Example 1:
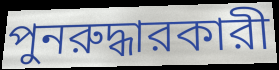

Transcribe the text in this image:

পুনরুদ্ধারকারী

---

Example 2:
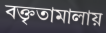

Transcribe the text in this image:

বক্তৃতামালায়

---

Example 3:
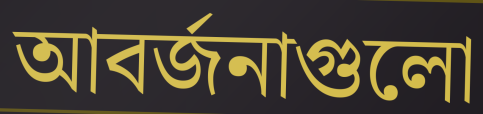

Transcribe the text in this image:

আবর্জনাগুলো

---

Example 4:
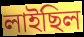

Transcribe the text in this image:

লাইছিল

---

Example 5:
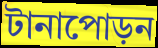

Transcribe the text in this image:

টানাপোড়ন